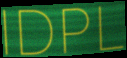
IDPL